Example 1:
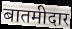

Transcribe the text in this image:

बातमीदार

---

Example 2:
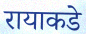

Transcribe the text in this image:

रायाकडे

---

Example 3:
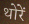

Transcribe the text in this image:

थोरें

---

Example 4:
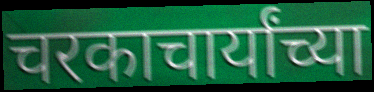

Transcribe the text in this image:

चरकाचार्यांच्या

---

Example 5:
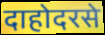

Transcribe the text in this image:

दाहोदरसे